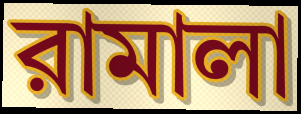
রামালা